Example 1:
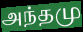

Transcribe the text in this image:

அந்தமு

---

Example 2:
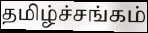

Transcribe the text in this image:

தமிழ்ச்சங்கம்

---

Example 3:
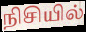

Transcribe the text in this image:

நிசியில்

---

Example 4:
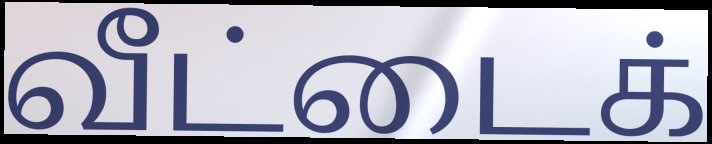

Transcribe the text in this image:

வீட்டைக்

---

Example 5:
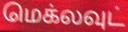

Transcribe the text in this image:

மெக்லவுட்